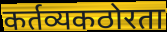
कर्तव्यकठोरता